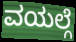
ವಯಲ್ಗೆ